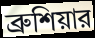
ব্রুশিয়ার